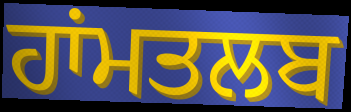
ਹਾਂਮਤਲਬ